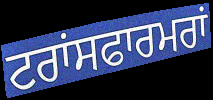
ਟਰਾਂਸਫਾਰਮਰਾਂ